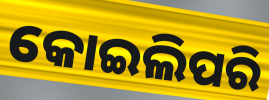
କୋଇଲିପରି